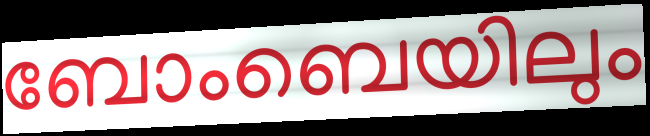
ബോംബെയിലും